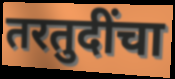
तरतुदींचा